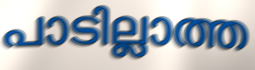
പാടില്ലാത്ത